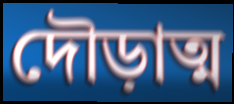
দৌড়াত্ম